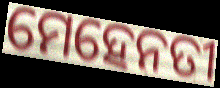
ମେହେନତୀ